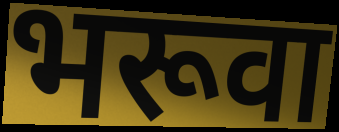
भरूवा